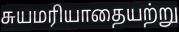
சுயமரியாதையற்று